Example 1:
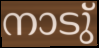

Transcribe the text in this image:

നാടു്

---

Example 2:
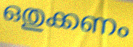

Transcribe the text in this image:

ഒതുക്കണം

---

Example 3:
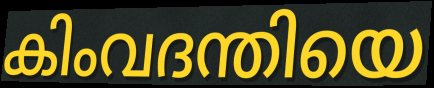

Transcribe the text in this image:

കിംവദന്തിയെ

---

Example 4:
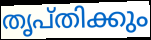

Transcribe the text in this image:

തൃപ്തിക്കും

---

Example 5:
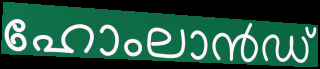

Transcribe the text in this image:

ഹോംലാൻഡ്